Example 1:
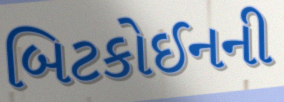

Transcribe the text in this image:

બિટકોઈનની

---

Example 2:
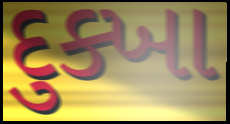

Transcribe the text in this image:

દુક્ખા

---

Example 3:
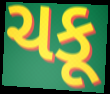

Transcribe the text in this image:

ચકૂ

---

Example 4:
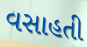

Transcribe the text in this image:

વસાહતી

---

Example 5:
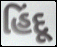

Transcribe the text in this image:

હિંદૂ